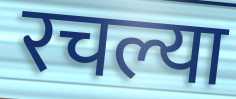
रचल्या